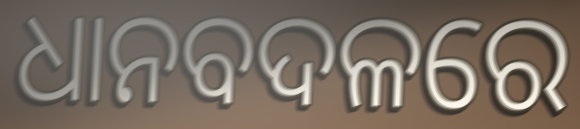
ଧାନବଦଳରେ